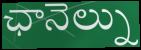
ఛానెల్ను